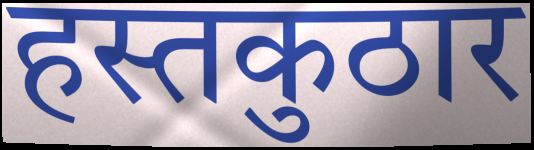
हस्तकुठार